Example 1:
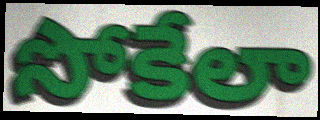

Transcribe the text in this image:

సోకేలా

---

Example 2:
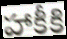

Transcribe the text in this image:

హాకీకి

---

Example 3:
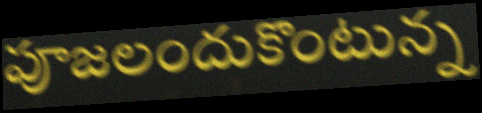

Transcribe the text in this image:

పూజలందుకొంటున్న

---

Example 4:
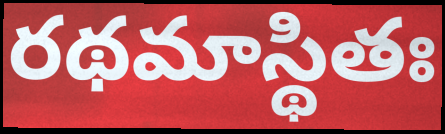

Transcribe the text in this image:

రథమాస్థితః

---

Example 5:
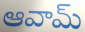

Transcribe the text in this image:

ఆవామ్